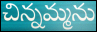
చిన్నమ్మను